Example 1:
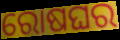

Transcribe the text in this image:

ରୋଷଘର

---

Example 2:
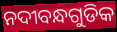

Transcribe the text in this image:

ନଦୀବନ୍ଧଗୁଡିକ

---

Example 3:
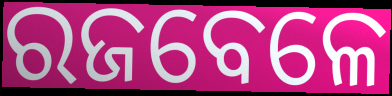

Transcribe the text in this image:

ରଜବେଳେ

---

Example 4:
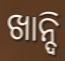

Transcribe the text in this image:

ଖାନ୍ଦି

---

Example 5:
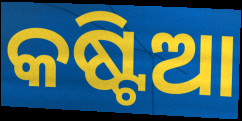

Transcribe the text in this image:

କଷ୍ଟିଆ